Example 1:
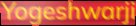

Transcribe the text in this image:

Yogeshwarji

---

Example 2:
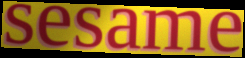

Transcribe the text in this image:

sesame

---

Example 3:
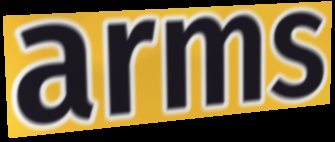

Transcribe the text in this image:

arms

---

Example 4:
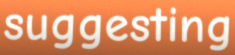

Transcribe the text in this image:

suggesting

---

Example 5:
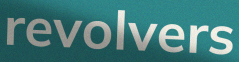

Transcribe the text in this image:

revolvers